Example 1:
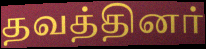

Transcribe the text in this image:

தவத்தினர்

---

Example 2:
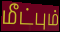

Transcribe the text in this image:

மீட்பும்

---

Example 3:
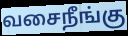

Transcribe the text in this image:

வசைநீங்கு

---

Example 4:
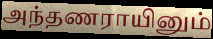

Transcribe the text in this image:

அந்தணராயினும்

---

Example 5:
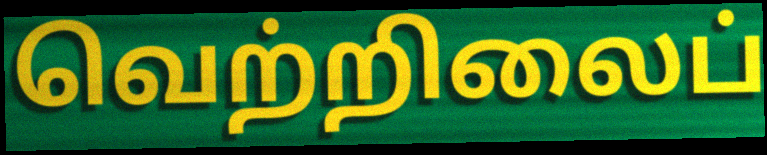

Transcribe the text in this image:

வெற்றிலைப்